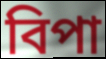
বিপা